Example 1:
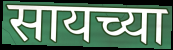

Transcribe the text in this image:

सायच्या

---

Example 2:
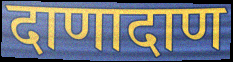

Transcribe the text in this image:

दाणादाण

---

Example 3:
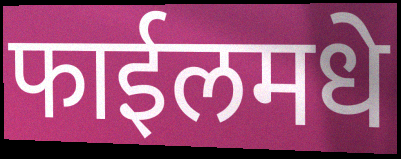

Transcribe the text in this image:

फाईलमधे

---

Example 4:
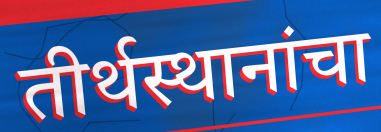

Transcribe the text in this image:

तीर्थस्थानांचा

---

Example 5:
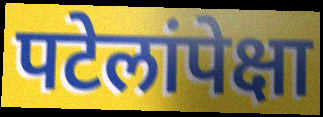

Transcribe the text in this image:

पटेलांपेक्षा